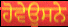
ਹੋਵੇਉਸਨੇ